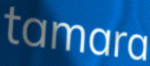
tamara